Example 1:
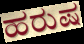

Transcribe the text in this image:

ಹರುಷ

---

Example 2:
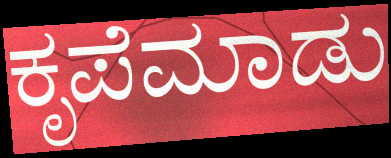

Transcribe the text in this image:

ಕೃಪೆಮಾಡು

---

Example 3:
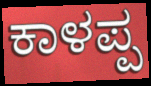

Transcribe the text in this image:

ಕಾಳಪ್ಪ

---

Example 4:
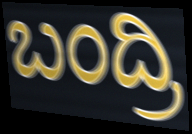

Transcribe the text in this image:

ಬಂದ್ರಿ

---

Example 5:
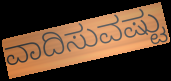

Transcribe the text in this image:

ವಾದಿಸುವಷ್ಟು